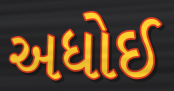
અધોઈ